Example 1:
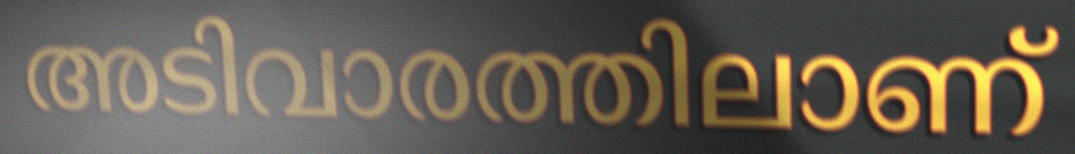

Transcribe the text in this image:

അടിവാരത്തിലാണ്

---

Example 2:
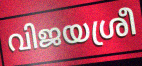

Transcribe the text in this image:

വിജയശ്രീ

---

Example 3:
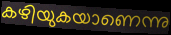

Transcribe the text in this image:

കഴിയുകയാണെന്നു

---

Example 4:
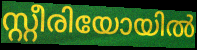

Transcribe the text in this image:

സ്റ്റീരിയോയിൽ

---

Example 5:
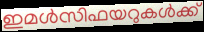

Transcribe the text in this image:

ഇമൾസിഫയറുകൾക്ക്